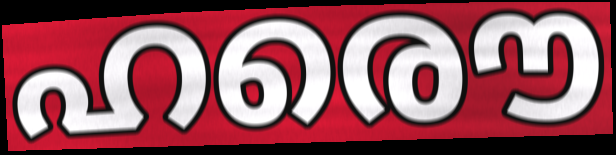
ഹരൌ